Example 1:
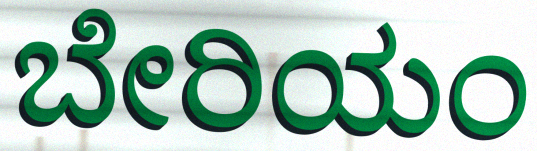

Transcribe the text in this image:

ಬೇರಿಯಂ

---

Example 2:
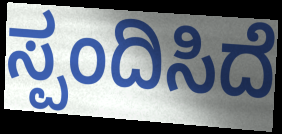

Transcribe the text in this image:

ಸ್ಪಂದಿಸಿದೆ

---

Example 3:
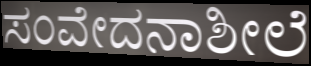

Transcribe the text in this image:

ಸಂವೇದನಾಶೀಲೆ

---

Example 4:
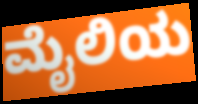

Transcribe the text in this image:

ಮೈಲಿಯ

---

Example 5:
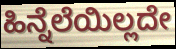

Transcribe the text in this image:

ಹಿನ್ನೆಲೆಯಿಲ್ಲದೇ